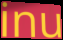
inu